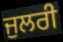
ਜੁਲਰੀ